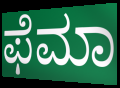
ಫೆಮಾ